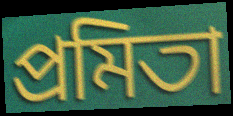
প্রমিতা